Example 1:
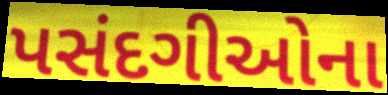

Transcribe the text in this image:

પસંદગીઓના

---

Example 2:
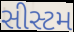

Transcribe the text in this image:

સીસ્ટમ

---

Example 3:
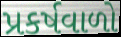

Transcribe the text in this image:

પ્રકર્ષવાળો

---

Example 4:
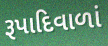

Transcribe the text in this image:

રૂપાદિવાળાં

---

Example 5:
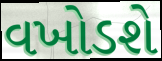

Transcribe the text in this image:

વખોડશે